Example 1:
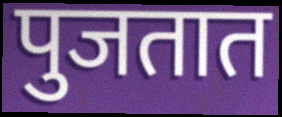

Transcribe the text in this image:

पुजतात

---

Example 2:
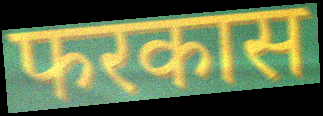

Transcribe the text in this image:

फरकास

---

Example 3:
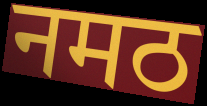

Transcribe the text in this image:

नमठ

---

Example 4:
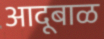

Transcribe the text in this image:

आदूबाळ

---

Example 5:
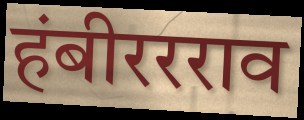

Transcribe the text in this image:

हंबीररराव